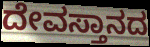
ದೇವಸ್ತಾನದ